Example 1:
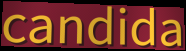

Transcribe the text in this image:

candida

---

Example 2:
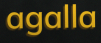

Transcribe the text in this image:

agalla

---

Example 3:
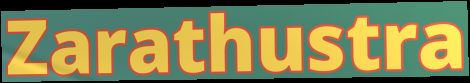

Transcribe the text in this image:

Zarathustra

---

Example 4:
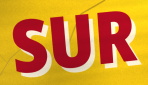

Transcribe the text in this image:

SUR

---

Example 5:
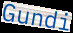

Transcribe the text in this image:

Gundi